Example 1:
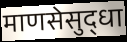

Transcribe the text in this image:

माणसेसुद्धा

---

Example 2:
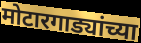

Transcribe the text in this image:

मोटारगाड्यांच्या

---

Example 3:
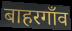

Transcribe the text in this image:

बाहरगाँव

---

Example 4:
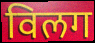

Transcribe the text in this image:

विलग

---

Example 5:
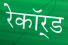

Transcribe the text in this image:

रेकॉर्ड